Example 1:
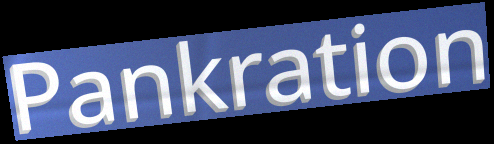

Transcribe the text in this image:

Pankration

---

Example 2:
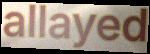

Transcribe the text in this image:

allayed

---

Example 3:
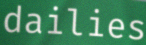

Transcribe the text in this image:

dailies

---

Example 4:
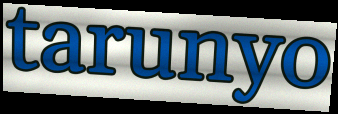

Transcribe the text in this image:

tarunyo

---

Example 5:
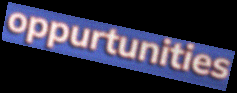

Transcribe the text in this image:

oppurtunities